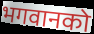
भगवानको